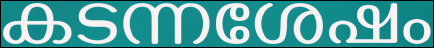
കടന്നശേഷം